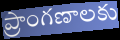
ప్రాంగణాలకు